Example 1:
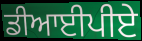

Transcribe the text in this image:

ਡੀਆਈਪੀਏ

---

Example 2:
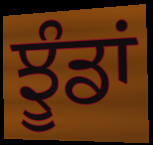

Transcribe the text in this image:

ਝੂੰਡਾਂ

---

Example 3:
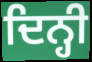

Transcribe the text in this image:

ਦਿਨ੍ਹੀ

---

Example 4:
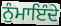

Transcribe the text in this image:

ਨੁੰਮਾਇੰਦੇ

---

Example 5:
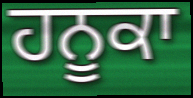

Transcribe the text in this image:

ਹਨੂਕਾ